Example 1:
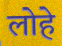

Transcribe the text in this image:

लोहे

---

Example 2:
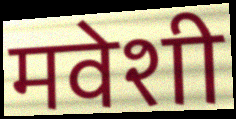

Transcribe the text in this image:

मवेशी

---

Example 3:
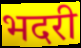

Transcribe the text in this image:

भदरी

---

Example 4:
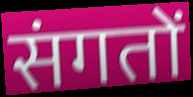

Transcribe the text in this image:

संगतों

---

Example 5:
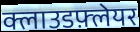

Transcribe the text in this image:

क्लाउडफ़्लेयर